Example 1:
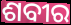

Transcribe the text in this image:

ଶବୀର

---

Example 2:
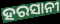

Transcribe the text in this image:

ହରସାନୀ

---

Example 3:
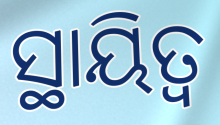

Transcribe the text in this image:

ସ୍ଥାୟିତ୍ୱ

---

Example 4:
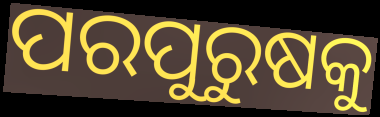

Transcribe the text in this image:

ପରପୁରୁଷକୁ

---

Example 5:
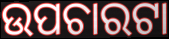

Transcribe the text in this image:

ଉପଚାରଟା